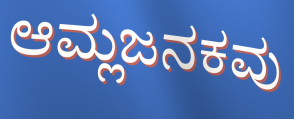
ಆಮ್ಲಜನಕವು